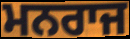
ਮਨਰਾਜ